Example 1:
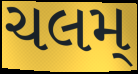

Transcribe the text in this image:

ચલમ્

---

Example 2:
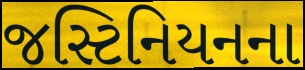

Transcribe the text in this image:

જસ્ટિનિયનના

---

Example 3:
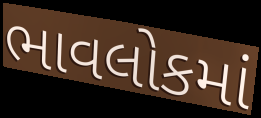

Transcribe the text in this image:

ભાવલોકમાં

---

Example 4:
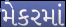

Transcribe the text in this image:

મેકરમાં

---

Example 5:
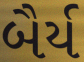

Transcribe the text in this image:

બૈર્ય